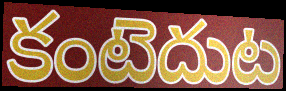
కంటెదుట